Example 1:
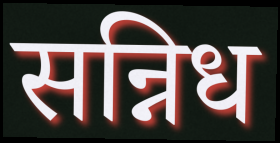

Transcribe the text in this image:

सन्निध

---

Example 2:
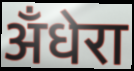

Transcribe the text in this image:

अँधेरा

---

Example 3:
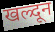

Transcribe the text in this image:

खल्दून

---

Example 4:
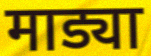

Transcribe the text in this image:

माड्या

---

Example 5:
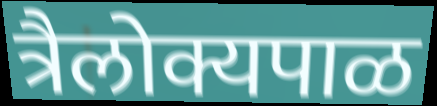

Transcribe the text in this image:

त्रैलोक्यपाळ